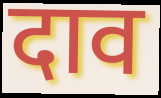
दाव